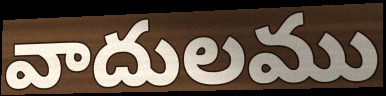
వాదులము